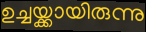
ഉച്ചയ്ക്കായിരുന്നു